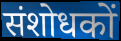
संशोधकों